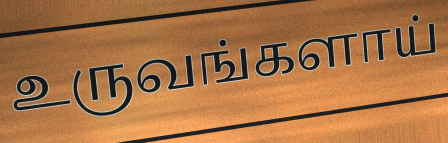
உருவங்களாய்